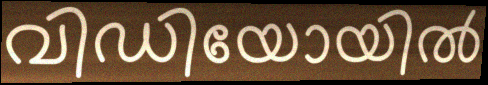
വിഡിയോയിൽ